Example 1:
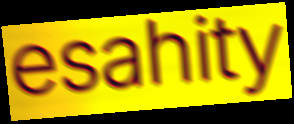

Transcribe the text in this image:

esahity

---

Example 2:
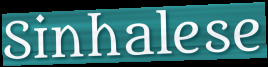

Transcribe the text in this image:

Sinhalese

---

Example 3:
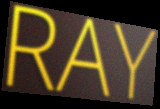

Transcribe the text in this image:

RAY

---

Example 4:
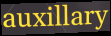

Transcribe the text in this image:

auxillary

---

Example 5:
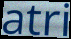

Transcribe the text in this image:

atri